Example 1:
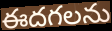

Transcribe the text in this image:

ఈదగలను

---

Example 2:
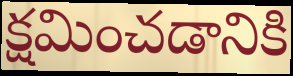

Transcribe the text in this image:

క్షమించడానికి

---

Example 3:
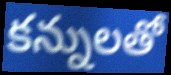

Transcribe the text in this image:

కన్నులతో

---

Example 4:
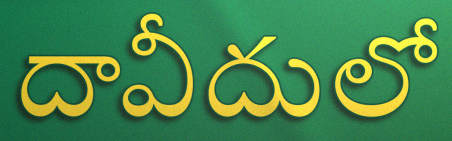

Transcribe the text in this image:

దావీదులో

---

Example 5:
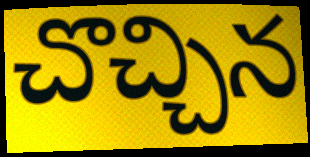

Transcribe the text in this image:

చొచ్చిన